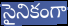
సైనికంగా